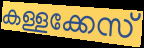
കള്ളക്കേസ്